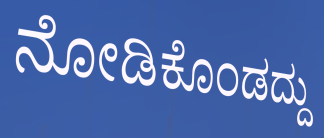
ನೋಡಿಕೊಂಡದ್ದು